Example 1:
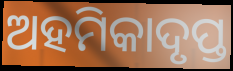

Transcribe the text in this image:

ଅହମିକାଦୃପ୍ତ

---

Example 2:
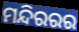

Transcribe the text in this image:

ମନ୍ଦିରରର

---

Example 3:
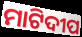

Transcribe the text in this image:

ମାଟିଦୀପ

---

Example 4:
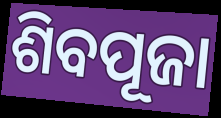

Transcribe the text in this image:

ଶିବପୂଜା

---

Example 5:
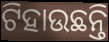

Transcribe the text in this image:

ଟିହାଉଛନ୍ତି